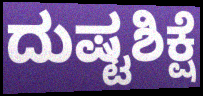
ದುಷ್ಟಶಿಕ್ಷೆ